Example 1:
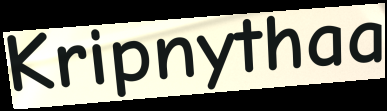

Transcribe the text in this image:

Kripnythaa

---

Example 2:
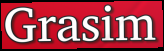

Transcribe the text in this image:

Grasim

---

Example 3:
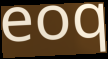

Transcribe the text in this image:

eoq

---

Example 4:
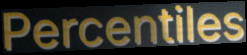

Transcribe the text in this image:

Percentiles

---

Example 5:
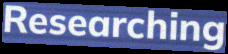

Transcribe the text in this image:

Researching